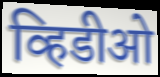
व्हिडीओ